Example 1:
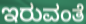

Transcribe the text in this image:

ಇರುವಂತೆ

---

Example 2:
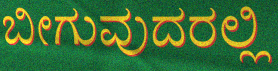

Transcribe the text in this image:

ಬೀಗುವುದರಲ್ಲಿ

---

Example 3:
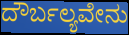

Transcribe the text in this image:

ದೌರ್ಬಲ್ಯವೇನು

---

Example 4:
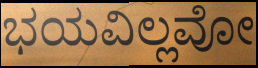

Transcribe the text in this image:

ಭಯವಿಲ್ಲವೋ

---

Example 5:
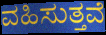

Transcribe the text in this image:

ವಹಿಸುತ್ತವೆ